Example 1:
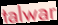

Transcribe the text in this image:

talwar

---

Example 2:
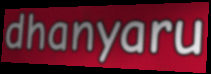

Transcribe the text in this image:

dhanyaru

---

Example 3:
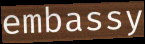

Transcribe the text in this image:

embassy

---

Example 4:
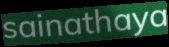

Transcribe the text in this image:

sainathaya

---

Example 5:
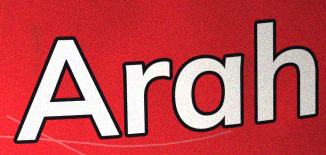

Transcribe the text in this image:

Arah